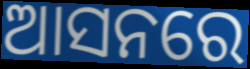
ଆସନରେ